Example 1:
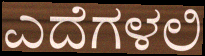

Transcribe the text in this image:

ಎದೆಗಳಲಿ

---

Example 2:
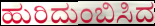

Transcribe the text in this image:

ಹುರಿದುಂಬಿಸಿದ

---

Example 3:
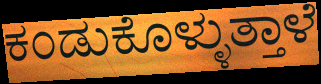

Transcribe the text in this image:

ಕಂಡುಕೊಳ್ಳುತ್ತಾಳೆ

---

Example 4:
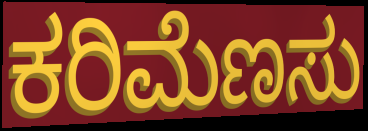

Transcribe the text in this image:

ಕರಿಮೆಣಸು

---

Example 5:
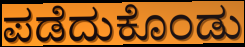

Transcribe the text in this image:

ಪಡೆದುಕೊಂಡು